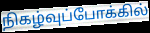
நிகழ்வுப்போக்கில்